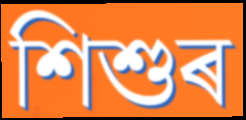
শিশুৰ